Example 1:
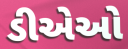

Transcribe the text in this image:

ડીએઓ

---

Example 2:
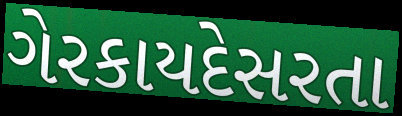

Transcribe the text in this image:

ગેરકાયદેસરતા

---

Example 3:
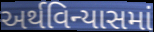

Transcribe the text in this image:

અર્થવિન્યાસમાં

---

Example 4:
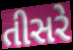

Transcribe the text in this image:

તીસરે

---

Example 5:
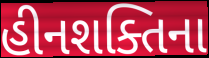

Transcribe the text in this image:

હીનશક્તિના